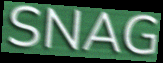
SNAG